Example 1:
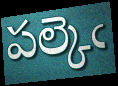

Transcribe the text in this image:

పల్కెఁ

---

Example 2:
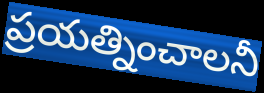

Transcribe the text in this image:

ప్రయత్నించాలనీ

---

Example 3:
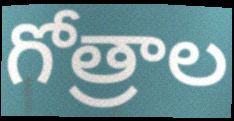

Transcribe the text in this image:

గోత్రాల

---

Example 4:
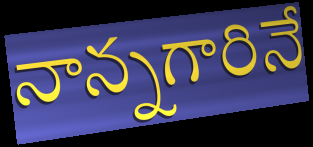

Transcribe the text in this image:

నాన్నగారినే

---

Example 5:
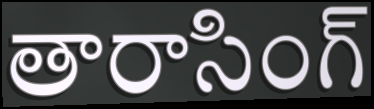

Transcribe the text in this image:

తారాసింగ్